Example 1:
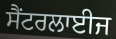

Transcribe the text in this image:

ਸੈਂਟਰਲਾਈਜ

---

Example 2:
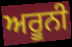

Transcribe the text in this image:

ਅਰੂਨੀ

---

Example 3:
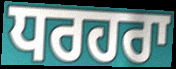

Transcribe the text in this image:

ਧਰਹਰਾ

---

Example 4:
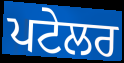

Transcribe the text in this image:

ਪਟੇਲਰ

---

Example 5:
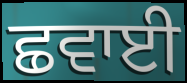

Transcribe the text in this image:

ਛਵਾਈ